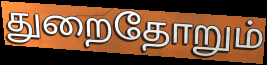
துறைதோறும்